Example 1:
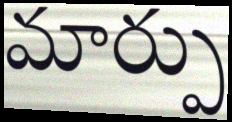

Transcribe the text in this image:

మార్పు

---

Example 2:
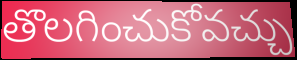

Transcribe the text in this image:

తొలగించుకోవచ్చు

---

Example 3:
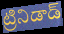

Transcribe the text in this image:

ట్రినిడాడ్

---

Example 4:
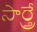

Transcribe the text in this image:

సార్త్రే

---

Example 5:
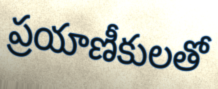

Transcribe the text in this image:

ప్రయాణీకులతో